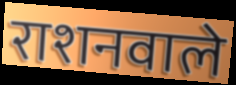
राशनवाले